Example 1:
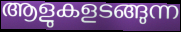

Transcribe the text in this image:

ആളുകളടങ്ങുന്ന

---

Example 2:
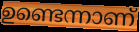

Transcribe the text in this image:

ഉണ്ടെന്നാണ്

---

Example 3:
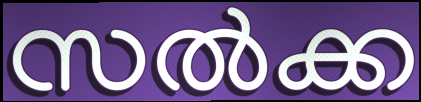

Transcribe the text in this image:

സൽക്ക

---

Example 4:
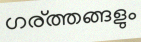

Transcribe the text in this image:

ഗര്ത്തങ്ങളും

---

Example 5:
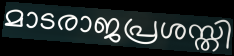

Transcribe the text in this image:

മാടരാജപ്രശസ്തി